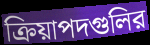
ক্রিয়াপদগুলির